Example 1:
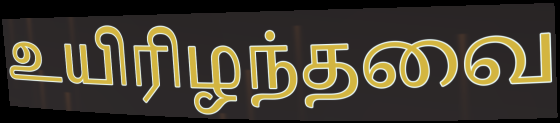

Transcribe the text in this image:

உயிரிழந்தவை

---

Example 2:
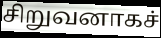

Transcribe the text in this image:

சிறுவனாகச்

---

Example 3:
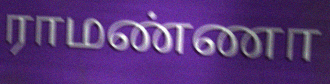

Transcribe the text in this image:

ராமண்ணா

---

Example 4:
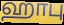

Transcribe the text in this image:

ஹாபு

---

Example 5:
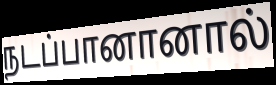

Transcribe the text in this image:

நடப்பானானால்